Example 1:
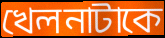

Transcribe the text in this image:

খেলনাটাকে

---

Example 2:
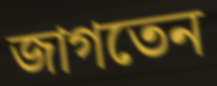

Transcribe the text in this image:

জাগতেন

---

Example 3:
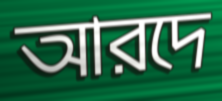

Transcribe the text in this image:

আরদে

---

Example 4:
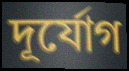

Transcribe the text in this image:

দূর্যোগ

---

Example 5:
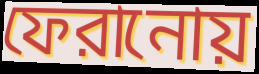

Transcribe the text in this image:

ফেরানোয়